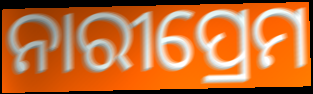
ନାରୀପ୍ରେମ